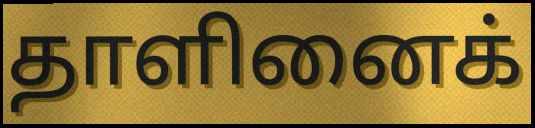
தாளினைக்